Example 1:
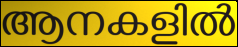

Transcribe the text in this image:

ആനകളിൽ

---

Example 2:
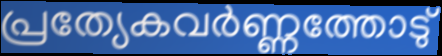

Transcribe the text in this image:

പ്രത്യേകവർണ്ണത്തോടു്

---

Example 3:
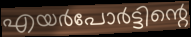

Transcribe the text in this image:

എയർപോർട്ടിന്റെ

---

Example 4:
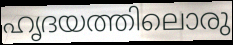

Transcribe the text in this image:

ഹൃദയത്തിലൊരു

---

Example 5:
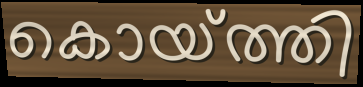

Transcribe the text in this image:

കൊയ്‌ത്തി